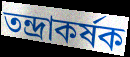
তন্দ্রাকর্ষক